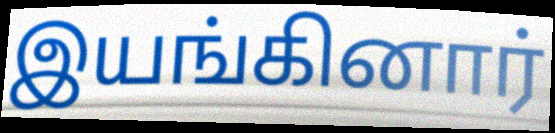
இயங்கினார்